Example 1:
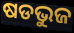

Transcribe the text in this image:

ଷଡଭୁଜ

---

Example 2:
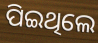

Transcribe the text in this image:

ପିଇଥିଲେ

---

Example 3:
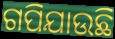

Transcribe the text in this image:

ଗପିଯାଉଛି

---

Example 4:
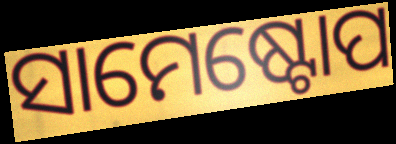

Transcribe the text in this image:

ସାମେଷ୍ଟୋପ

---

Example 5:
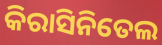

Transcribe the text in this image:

କିରାସିନିତେଲ